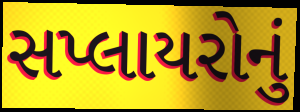
સપ્લાયરોનું